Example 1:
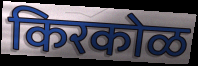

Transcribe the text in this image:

किरकोळ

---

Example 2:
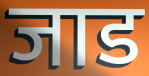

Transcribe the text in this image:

जाड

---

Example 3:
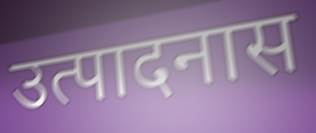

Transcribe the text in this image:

उत्पादनास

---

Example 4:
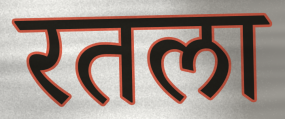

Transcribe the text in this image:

रतला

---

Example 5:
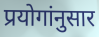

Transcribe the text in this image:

प्रयोगांनुसार